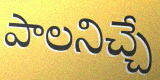
పాలనిచ్చే